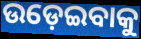
ଉଡ଼େଇବାକୁ